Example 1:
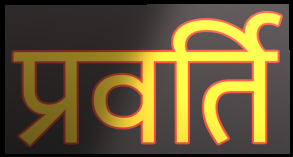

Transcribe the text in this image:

प्रवर्ति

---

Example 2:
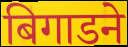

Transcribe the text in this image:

बिगाडने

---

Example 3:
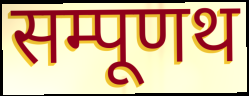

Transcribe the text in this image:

सम्पूणथ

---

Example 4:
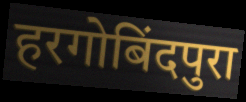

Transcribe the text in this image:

हरगोबिंदपुरा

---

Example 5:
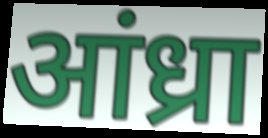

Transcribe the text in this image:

आंध्रा